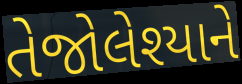
તેજોલેશ્યાને